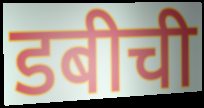
डबीची